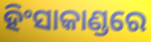
ହିଂସାକାଣ୍ଡରେ